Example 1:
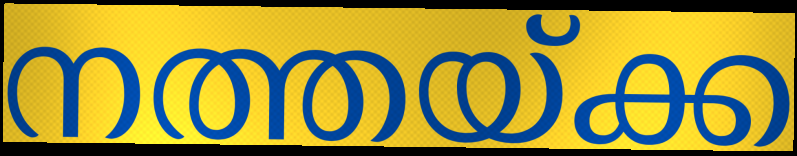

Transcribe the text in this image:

നത്തയ്ക്ക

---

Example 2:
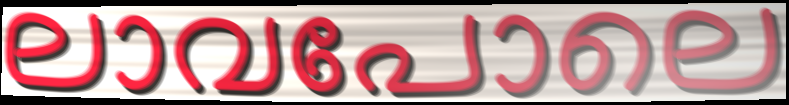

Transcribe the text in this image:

ലാവപോലെ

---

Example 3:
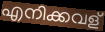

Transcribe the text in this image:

എനിക്കവള്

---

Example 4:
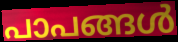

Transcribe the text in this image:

പാപങ്ങൾ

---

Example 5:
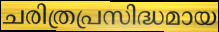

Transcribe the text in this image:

ചരിത്രപ്രസിദ്ധമായ